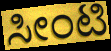
ಸೀಂಟಿ